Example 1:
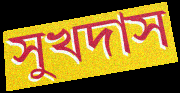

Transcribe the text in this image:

সুখদাস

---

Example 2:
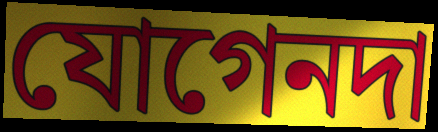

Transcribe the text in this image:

যোগেনদা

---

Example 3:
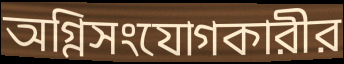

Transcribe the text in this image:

অগ্নিসংযোগকারীর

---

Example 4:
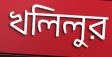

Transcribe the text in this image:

খলিলুর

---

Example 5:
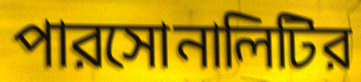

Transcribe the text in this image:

পারসোনালিটির